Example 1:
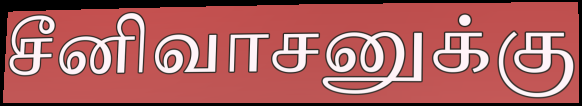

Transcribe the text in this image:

சீனிவாசனுக்கு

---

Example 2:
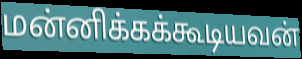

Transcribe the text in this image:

மன்னிக்கக்கூடியவன்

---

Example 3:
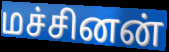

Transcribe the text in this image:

மச்சினன்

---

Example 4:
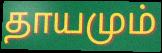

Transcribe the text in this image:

தாயமும்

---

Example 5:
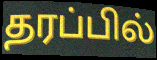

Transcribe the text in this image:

தரப்பில்